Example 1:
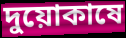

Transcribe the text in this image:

দুয়োকাষে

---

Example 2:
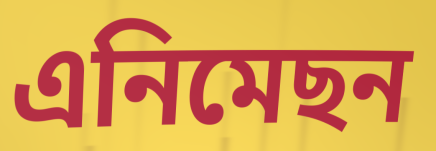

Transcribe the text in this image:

এনিমেছন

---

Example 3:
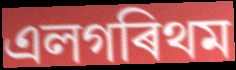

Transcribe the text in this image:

এলগৰিথম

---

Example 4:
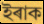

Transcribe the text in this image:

ইৰাক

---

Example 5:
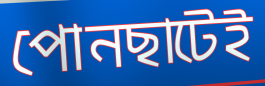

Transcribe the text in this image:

পোনছাটেই